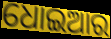
ଧୋଇଆର